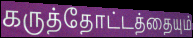
கருத்தோட்டத்தையும்